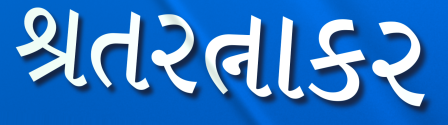
શ્રતરત્નાકર